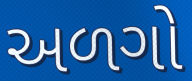
અળગો